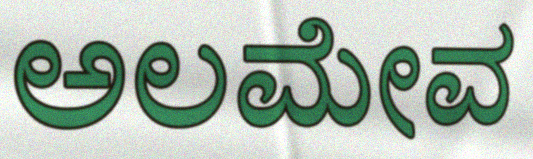
ಅಲಮೇವ